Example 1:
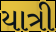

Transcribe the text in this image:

યાત્રી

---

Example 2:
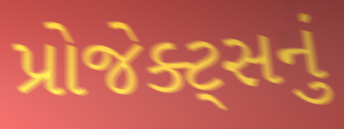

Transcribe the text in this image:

પ્રોજેક્ટ્સનું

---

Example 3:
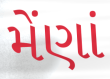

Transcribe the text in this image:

મેંણાં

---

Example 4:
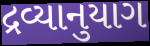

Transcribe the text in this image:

દ્રવ્યાનુયાગ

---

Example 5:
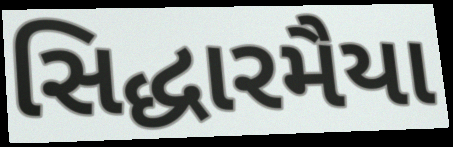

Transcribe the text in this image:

સિદ્ધારમૈયા